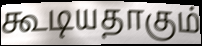
கூடியதாகும்